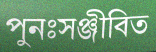
পুনঃসঞ্জীবিত